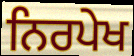
ਨਿਰਪੇਖ